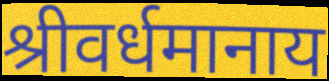
श्रीवर्धमानाय